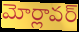
మోర్లావర్